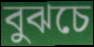
বুঝচে